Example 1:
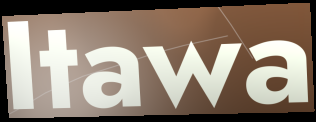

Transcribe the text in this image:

Itawa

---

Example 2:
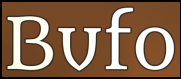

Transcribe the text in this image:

Bufo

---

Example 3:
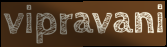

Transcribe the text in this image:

vipravani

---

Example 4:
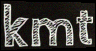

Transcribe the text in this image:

kmt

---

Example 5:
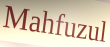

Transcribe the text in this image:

Mahfuzul